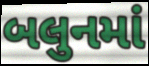
બલુનમાં